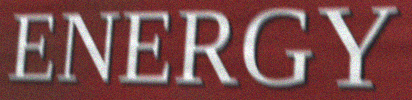
ENERGY